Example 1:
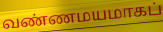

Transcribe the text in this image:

வண்ணமயமாகப்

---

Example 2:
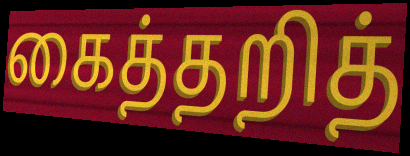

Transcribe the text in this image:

கைத்தறித்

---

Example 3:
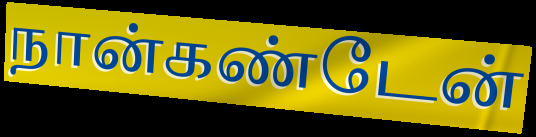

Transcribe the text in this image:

நான்கண்டேன்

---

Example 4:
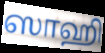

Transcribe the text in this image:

ஸாஹி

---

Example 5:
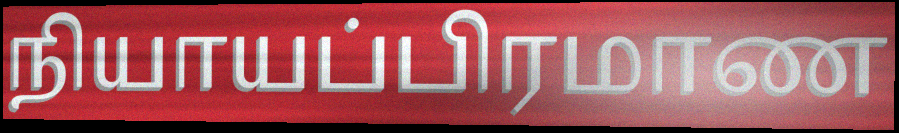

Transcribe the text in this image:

நியாயப்பிரமாண